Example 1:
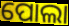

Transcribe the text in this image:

ପୋଲା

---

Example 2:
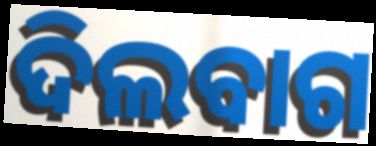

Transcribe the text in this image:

ଦିଲବାଗ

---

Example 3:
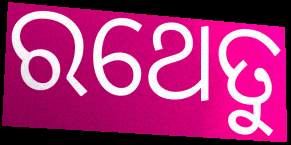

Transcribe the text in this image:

ରଥେତୁ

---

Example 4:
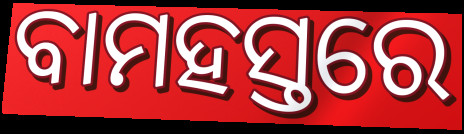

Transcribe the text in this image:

ବାମହସ୍ତରେ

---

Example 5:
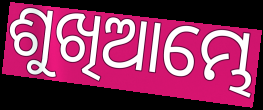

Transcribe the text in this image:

ଶୁଖିଆମ୍ଭେ